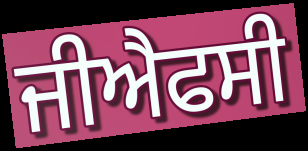
ਜੀਐਫਸੀ